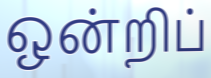
ஒன்றிப்